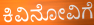
ಕಿವಿನೋವಿಗೆ